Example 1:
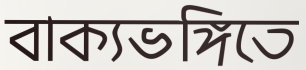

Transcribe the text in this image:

বাক্যভঙ্গিতে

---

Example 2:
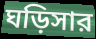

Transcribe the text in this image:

ঘড়িসার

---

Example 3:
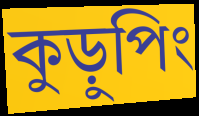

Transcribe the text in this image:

কুড়ুপিং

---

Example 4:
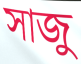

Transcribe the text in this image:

সাজু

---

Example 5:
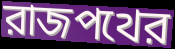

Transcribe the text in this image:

রাজপথের